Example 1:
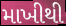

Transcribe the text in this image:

માખીથી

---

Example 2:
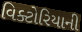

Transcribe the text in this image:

વિક્ટોરિયાની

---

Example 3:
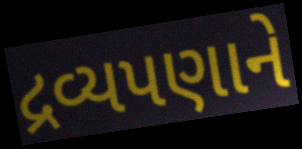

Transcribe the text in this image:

દ્રવ્યપણાને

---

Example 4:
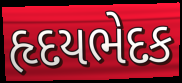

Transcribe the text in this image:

હૃદયભેદક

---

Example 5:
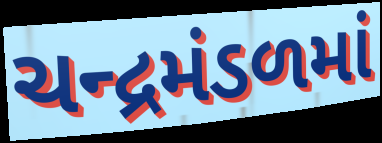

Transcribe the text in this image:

ચન્દ્રમંડળમાં